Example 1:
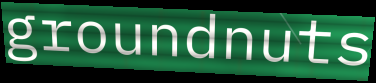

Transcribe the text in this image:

groundnuts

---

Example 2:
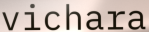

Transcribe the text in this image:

vichara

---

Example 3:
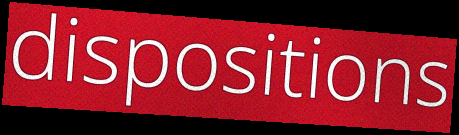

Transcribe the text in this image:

dispositions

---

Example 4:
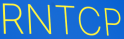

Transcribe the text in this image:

RNTCP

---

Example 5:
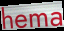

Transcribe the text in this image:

hema